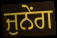
ਜੁਨੇਂਗ